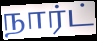
நார்ட்